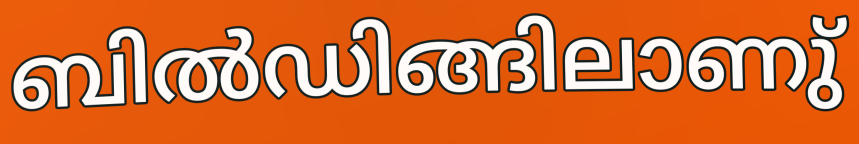
ബിൽഡിങ്ങിലാണു്